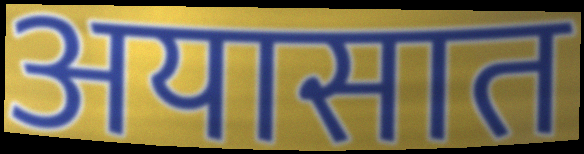
अयासात